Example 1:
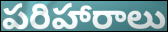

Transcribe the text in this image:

పరిహారాలు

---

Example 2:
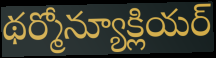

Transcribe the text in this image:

థర్మోన్యూక్లియర్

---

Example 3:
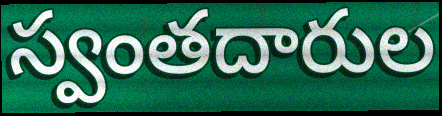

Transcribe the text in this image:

స్వంతదారుల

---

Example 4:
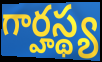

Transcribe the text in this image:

గార్హస్థ్య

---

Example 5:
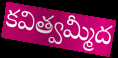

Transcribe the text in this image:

కవిత్వమ్మీద